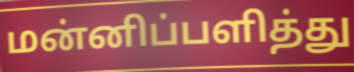
மன்னிப்பளித்து